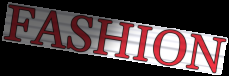
FASHION